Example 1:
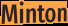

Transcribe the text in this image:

Minton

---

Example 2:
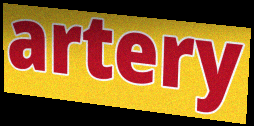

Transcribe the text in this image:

artery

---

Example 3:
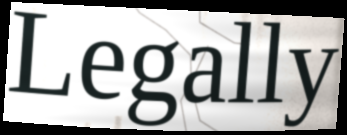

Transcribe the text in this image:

Legally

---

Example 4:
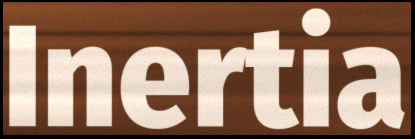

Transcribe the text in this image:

Inertia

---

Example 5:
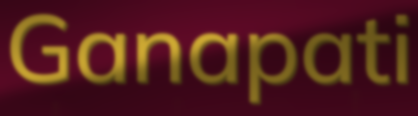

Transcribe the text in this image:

Ganapati